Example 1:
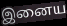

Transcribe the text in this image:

இனைய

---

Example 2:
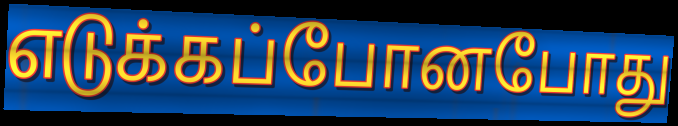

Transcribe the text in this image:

எடுக்கப்போனபோது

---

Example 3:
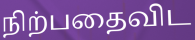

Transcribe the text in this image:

நிற்பதைவிட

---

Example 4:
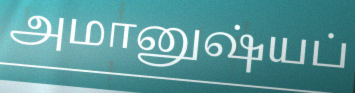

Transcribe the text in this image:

அமானுஷ்யப்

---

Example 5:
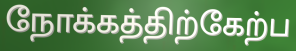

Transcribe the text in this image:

நோக்கத்திற்கேற்ப